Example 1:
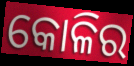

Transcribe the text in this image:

କୋଳିର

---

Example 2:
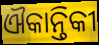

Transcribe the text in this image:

ଐକାନ୍ତିକୀ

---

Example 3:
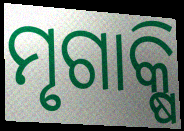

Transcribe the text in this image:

ମୃଗାକ୍ଷି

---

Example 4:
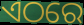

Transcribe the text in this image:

ଏଠରେ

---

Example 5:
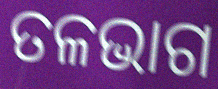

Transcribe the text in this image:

ତଳଭାଗ